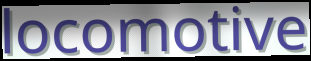
locomotive